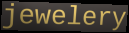
jewelery